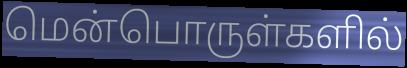
மென்பொருள்களில்